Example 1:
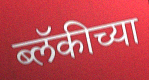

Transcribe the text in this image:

ब्लॅकीच्या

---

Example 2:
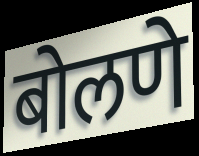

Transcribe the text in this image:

बोलणे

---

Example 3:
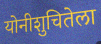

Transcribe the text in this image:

योनीशुचितेला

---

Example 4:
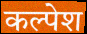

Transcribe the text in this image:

कल्पेश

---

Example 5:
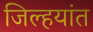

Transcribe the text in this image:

जिल्हयांत